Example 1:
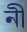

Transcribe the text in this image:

নী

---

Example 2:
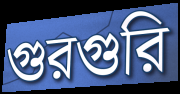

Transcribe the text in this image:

গুরগুরি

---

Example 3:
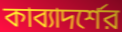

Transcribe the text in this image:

কাব্যাদর্শের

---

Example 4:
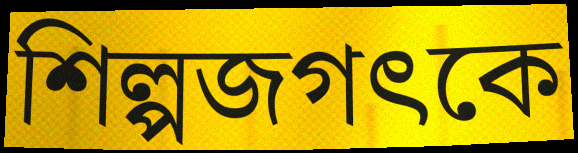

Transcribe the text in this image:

শিল্পজগৎকে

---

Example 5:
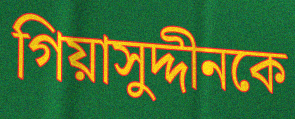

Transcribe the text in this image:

গিয়াসুদ্দীনকে